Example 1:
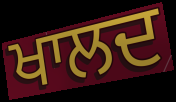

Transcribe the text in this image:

ਖਾਲਦ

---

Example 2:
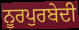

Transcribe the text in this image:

ਨੂਰਪੁਰਬੇਦੀ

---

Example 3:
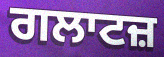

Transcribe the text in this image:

ਗਲਾਟਜ਼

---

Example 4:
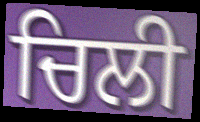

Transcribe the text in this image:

ਚਿਲੀ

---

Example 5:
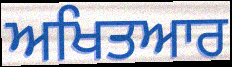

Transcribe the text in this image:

ਅਖਿਤਆਰ